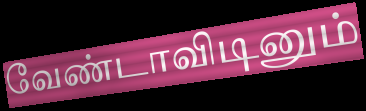
வேண்டாவிடினும்